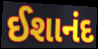
ઈશાનંદ